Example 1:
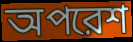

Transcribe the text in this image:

অপরেশ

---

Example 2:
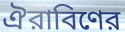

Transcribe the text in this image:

ঐরাবিণের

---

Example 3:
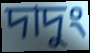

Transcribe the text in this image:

দাদুং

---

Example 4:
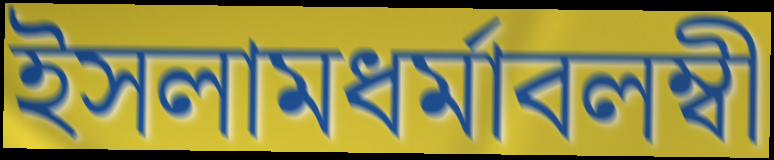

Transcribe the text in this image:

ইসলামধর্মাবলম্বী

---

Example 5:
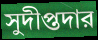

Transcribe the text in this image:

সুদীপ্তদার